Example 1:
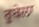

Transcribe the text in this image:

ਰੂਬੇਲਾ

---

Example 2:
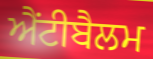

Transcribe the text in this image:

ਐਂਟੀਬੈਲਮ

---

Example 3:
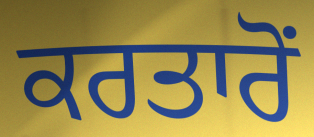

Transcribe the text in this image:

ਕਰਤਾਰੋਂ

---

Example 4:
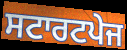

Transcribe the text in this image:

ਸਟਾਰਟਪੇਜ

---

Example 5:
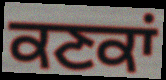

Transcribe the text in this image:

ਕਣਕਾਂ